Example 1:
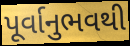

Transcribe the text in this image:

પૂર્વાનુભવથી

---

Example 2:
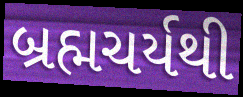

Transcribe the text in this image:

બ્રહ્મચર્યથી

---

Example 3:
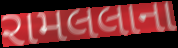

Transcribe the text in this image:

રામલલાના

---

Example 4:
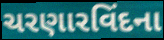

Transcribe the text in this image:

ચરણારવિંદના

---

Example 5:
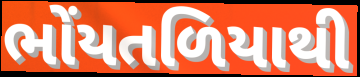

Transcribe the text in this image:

ભોંયતળિયાથી